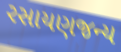
રસાયણજન્ય